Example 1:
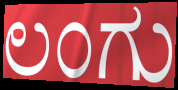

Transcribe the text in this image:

ಲಂಗು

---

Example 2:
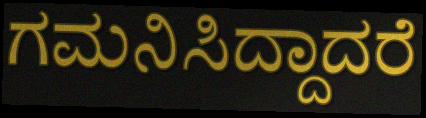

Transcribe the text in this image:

ಗಮನಿಸಿದ್ದಾದರೆ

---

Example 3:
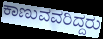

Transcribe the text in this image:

ಕಾಣುವವರಿದ್ದರು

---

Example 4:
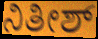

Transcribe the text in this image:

ನಿತೀಶ್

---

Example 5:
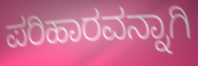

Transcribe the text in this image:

ಪರಿಹಾರವನ್ನಾಗಿ